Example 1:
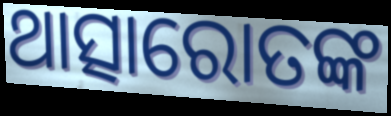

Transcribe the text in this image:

ଥାତ୍ସାରୋତଙ୍କ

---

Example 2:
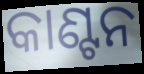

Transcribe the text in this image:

କାଣ୍ଟନ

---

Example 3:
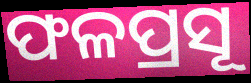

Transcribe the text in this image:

ଫଳପ୍ରସୂ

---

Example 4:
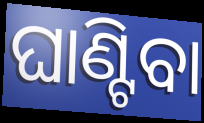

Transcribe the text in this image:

ଘାଣ୍ଟିବା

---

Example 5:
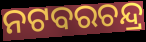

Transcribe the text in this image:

ନଟବରଚନ୍ଦ୍ର